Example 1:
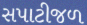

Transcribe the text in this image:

સપાટીજળ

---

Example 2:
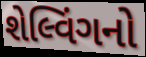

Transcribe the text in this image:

શેલ્વિંગનો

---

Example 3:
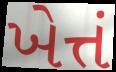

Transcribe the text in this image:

ખેત્તં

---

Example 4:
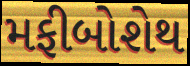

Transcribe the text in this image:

મફીબોશેથ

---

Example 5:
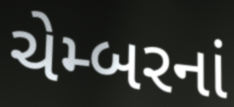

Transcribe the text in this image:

ચેમ્બરનાં